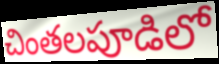
చింతలపూడిలో